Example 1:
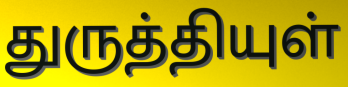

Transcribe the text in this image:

துருத்தியுள்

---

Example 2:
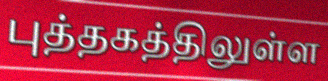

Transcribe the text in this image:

புத்தகத்திலுள்ள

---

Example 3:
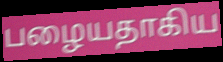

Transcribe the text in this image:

பழையதாகிய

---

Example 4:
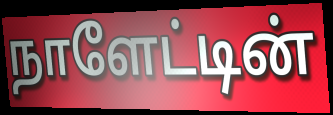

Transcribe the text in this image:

நாளேட்டின்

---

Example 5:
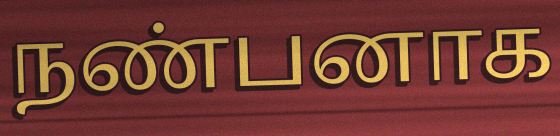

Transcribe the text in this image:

நண்பனாக